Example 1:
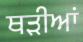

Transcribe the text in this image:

ਥੜੀਆਂ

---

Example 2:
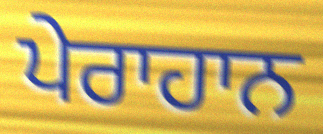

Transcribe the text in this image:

ਪੇਰਾਹਾਨ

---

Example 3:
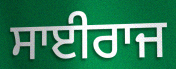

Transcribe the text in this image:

ਸਾਈਰਾਜ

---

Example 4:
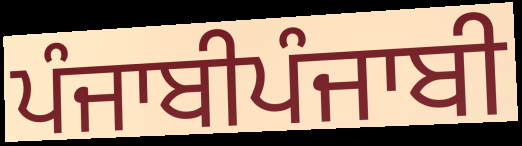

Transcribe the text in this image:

ਪੰਜਾਬੀਪੰਜਾਬੀ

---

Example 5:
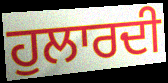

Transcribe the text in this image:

ਹੁਲਾਰਦੀ